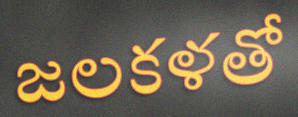
జలకళతో